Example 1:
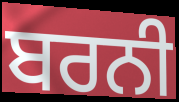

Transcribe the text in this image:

ਬਰਨੀ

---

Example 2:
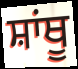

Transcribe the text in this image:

ਸ਼ਾਂਥੂ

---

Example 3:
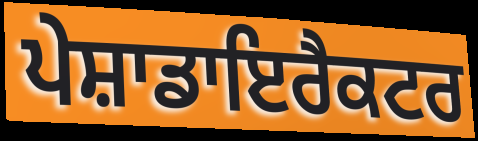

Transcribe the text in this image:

ਪੇਸ਼ਾਡਾਇਰੈਕਟਰ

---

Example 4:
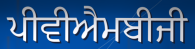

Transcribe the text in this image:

ਪੀਵੀਐਮਬੀਜੀ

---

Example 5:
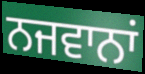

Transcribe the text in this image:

ਨਜਵਾਨਾਂ